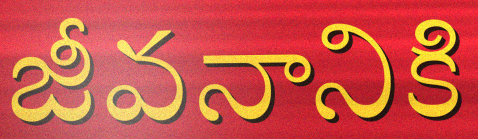
జీవనానికి